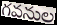
గవనుల